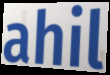
ahil